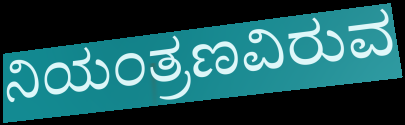
ನಿಯಂತ್ರಣವಿರುವ